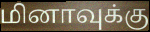
மினாவுக்கு